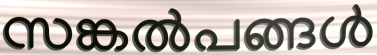
സങ്കൽപങ്ങൾ